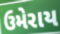
ઉમેરાય